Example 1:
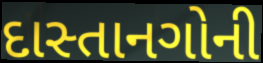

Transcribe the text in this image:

દાસ્તાનગોની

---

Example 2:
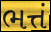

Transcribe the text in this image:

ભત્તં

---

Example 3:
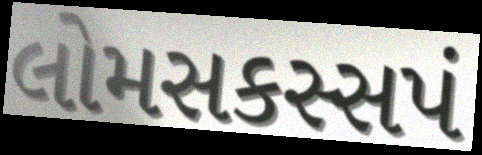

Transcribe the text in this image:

લોમસકસ્સપં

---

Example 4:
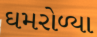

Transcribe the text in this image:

ઘમરોળ્યા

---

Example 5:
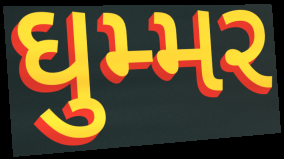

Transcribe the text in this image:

ઘુમ્મર